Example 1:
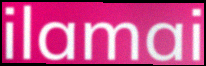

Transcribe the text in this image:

ilamai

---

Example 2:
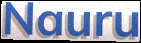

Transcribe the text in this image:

Nauru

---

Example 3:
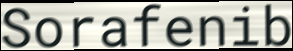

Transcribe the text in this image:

Sorafenib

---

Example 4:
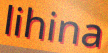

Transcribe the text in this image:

lihina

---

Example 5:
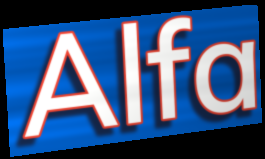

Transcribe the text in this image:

Alfa